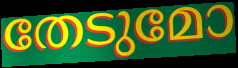
തേടുമോ